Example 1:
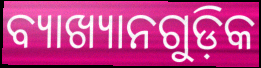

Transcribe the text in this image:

ବ୍ୟାଖ୍ୟାନଗୁଡ଼ିକ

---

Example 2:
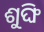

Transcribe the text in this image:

ଶୁଙ୍ଘି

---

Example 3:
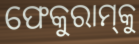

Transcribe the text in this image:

ଫେକୁରାମ୍‌କୁ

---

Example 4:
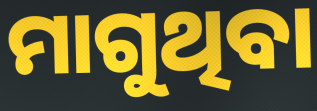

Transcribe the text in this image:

ମାଗୁଥିବା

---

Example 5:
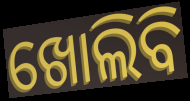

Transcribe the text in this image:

ଖୋଲିବି